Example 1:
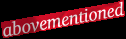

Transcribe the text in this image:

abovementioned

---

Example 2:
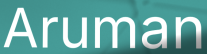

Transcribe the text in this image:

Aruman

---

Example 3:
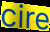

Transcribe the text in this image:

cire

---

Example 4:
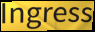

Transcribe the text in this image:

Ingress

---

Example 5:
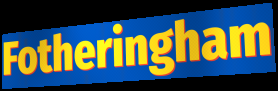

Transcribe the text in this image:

Fotheringham